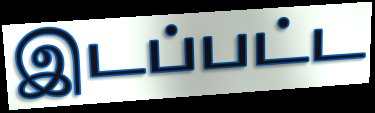
இடப்பட்ட